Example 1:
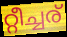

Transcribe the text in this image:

റ്റീച്ചര്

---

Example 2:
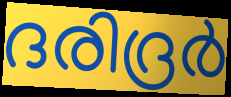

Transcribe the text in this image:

ദരിദ്രർ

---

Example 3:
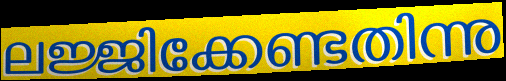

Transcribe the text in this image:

ലജ്ജിക്കേണ്ടതിന്നു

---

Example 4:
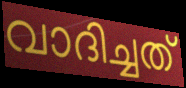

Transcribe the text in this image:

വാദിച്ചത്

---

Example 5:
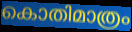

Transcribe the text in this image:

കൊതിമാത്രം